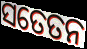
ସତେତନ